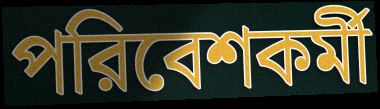
পরিবেশকর্মী